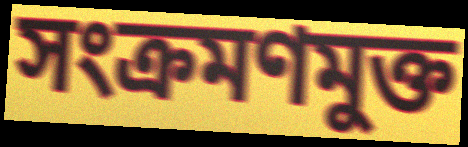
সংক্রমণমুক্ত